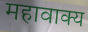
महावाक्य